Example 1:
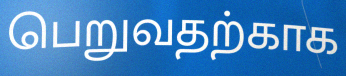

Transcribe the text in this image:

பெறுவதற்காக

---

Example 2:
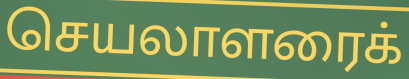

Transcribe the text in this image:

செயலாளரைக்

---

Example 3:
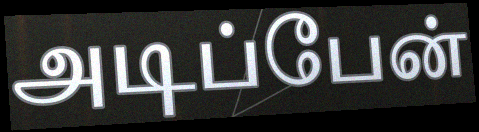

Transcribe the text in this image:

அடிப்பேன்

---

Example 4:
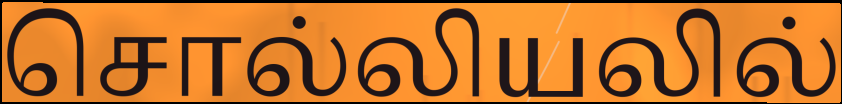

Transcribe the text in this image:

சொல்லியலில்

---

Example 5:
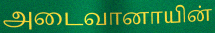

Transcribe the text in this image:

அடைவானாயின்